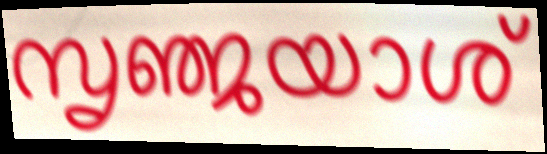
സൃഞ്ജയാശ്